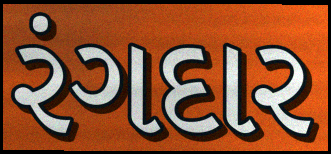
રંગદાર